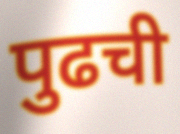
पुढची